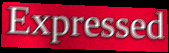
Expressed